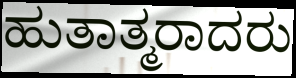
ಹುತಾತ್ಮರಾದರು